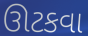
ઊટકવા